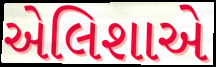
એલિશાએ